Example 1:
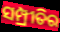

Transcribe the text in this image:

ସମ୍ପ୍ରୀତିର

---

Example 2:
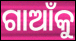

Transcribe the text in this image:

ଗାଆଁକୁ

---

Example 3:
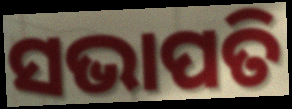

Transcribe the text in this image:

ସଭାପତି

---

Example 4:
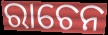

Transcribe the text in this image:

ରାଚେନ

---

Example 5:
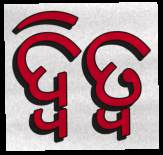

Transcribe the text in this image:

ଦ୍ୱିତ୍ୱ